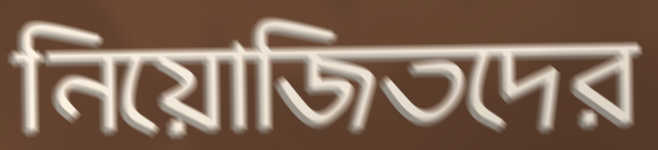
নিয়োজিতদের